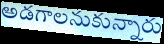
అడగాలనుకున్నారు